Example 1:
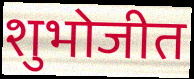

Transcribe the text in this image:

शुभोजीत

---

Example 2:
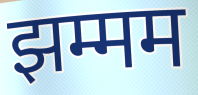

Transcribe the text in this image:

झम्मम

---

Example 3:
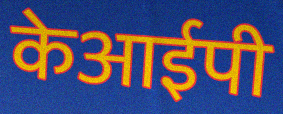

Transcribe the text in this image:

केआईपी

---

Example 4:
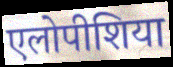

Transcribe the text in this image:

एलोपीशिया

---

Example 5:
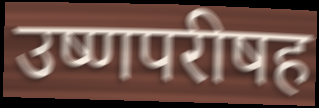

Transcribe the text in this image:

उष्णपरीषह